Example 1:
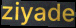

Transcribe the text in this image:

ziyade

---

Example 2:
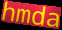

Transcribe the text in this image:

hmda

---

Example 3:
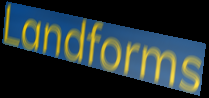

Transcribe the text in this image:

Landforms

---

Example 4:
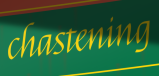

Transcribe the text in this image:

chastening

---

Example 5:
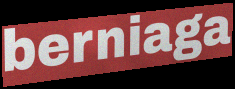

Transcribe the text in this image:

berniaga